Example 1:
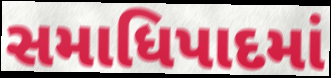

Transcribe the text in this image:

સમાધિપાદમાં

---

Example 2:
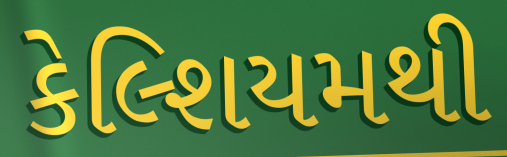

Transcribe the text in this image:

કેલ્શિયમથી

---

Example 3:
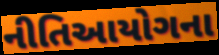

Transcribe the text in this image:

નીતિઆયોગના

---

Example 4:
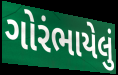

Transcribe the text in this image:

ગોરંભાયેલું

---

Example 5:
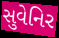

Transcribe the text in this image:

સુવેનિર